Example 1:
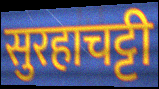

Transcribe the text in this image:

सुरहाचट्टी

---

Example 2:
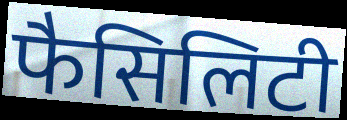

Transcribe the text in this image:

फैसिलिटी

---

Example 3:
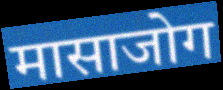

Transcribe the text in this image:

मासाजोग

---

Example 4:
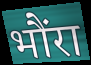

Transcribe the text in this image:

भौंरा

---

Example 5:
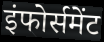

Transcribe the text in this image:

इंफोर्समेंट